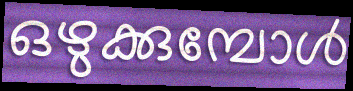
ഒഴുക്കുമ്പോൾ